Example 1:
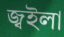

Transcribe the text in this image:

জ্বইলা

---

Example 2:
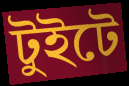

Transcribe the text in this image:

টুইটে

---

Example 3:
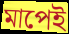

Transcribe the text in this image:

মাপেই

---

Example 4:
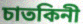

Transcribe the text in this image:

চাতকিনী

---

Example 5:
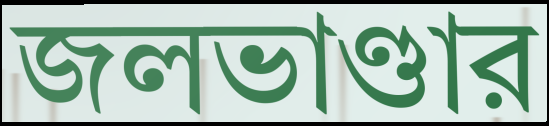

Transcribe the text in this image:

জলভাণ্ডার